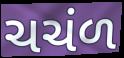
ચચંળ